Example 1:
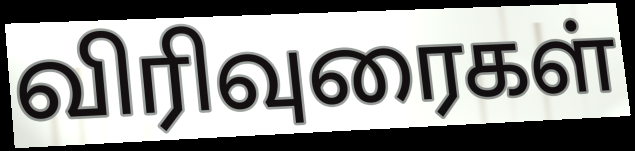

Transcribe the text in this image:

விரிவுரைகள்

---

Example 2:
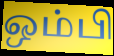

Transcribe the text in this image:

ஒம்பி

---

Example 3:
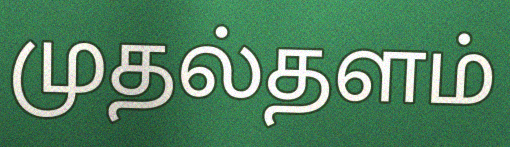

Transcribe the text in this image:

முதல்தளம்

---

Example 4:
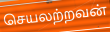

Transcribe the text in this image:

செயலற்றவன்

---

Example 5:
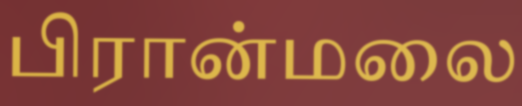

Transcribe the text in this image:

பிரான்மலை